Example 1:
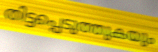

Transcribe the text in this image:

തിട്ടപ്പെടുത്തുകയും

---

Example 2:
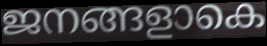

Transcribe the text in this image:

ജനങ്ങളാകെ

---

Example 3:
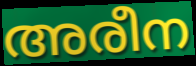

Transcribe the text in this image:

അരീന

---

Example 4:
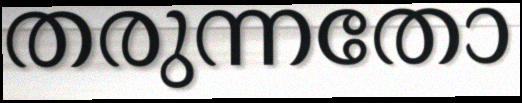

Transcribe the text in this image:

തരുന്നതോ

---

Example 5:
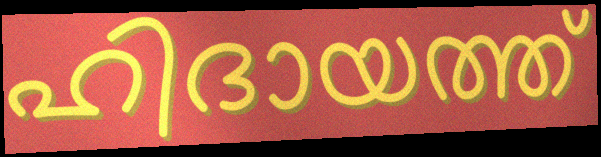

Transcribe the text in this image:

ഹിദായത്ത്